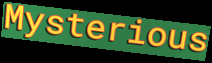
Mysterious